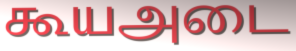
கூயஅடை